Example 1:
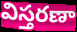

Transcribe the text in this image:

విస్తరణా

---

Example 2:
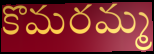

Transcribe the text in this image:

కొమరమ్మ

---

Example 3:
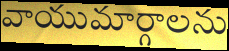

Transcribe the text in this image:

వాయుమార్గాలను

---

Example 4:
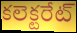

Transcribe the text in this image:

కలెక్టరేట్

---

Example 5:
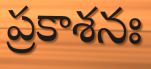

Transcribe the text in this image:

ప్రకాశనః